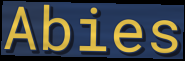
Abies